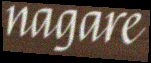
nagare